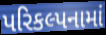
પરિકલ્પનામાં